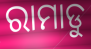
ରାମାଡୁ